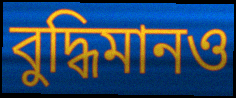
বুদ্ধিমানও